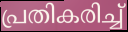
പ്രതികരിച്ച്